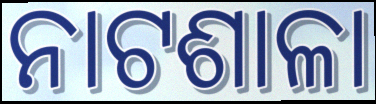
ନାଟଶାଳା